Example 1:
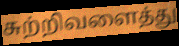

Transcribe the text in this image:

சுற்றிவளைத்து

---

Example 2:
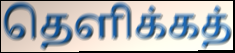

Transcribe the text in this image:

தெளிக்கத்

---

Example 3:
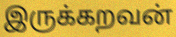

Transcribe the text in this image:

இருக்கறவன்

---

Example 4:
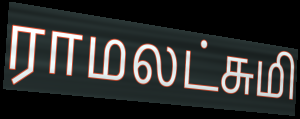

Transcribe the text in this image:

ராமலட்சுமி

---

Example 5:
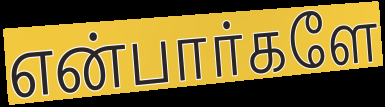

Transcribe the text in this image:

என்பார்களே